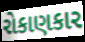
રોકાણકાર